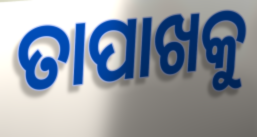
ତାପାଖକୁ